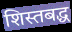
शिस्तबद्ध